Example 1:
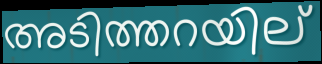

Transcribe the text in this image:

അടിത്തറയില്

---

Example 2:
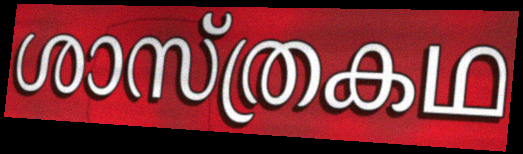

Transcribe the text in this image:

ശാസ്ത്രകഥ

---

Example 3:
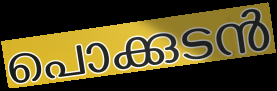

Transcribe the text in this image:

പൊക്കുടൻ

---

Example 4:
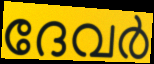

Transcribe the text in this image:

ദേവർ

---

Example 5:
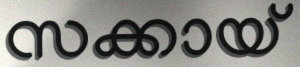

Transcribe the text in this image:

സക്കായ്